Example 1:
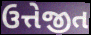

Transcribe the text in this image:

ઉત્તેજીત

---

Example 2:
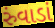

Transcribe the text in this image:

રુંવાડાં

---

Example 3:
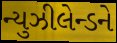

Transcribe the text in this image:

ન્યુઝીલેન્ડને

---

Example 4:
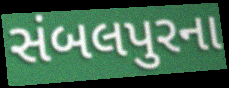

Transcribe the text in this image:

સંબલપુરના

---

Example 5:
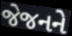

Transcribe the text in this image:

જેજનને